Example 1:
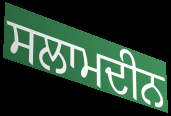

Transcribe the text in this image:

ਸਲਾਮਦੀਨ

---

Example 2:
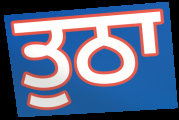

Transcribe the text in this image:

ਤੁਠਾ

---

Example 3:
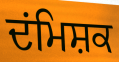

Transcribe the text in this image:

ਦਂਮਿਸ਼ਕ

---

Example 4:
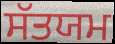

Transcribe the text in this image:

ਸੱਤਯਮ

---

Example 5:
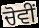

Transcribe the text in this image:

ਚੋਵੀਂ